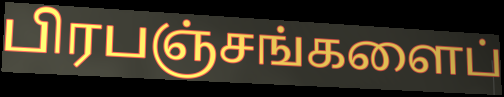
பிரபஞ்சங்களைப்